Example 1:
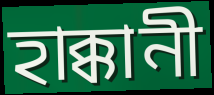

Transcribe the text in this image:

হাক্কানী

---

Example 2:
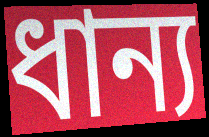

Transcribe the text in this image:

ধান্য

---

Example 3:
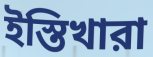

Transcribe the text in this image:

ইস্তিখারা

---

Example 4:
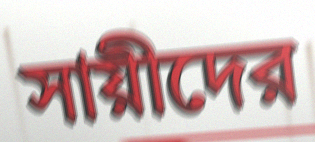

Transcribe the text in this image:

সায়ীদের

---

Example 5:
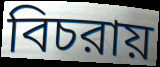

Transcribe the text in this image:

বিচরায়